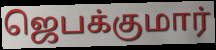
ஜெபக்குமார்